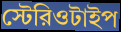
স্টেরিওটাইপ